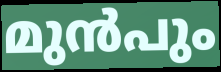
മുൻപും